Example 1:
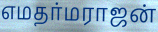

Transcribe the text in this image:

எமதர்மராஜன்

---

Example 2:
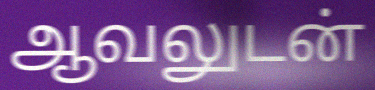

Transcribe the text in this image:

ஆவலுடன்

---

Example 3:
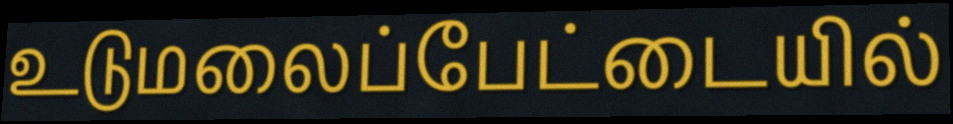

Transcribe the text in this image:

உடுமலைப்பேட்டையில்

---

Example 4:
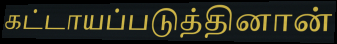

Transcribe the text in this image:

கட்டாயப்படுத்தினான்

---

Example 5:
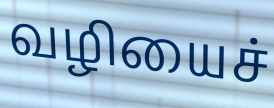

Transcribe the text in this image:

வழியைச்